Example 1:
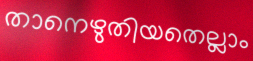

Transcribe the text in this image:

താനെഴുതിയതെല്ലാം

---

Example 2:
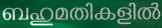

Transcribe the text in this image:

ബഹുമതികളിൽ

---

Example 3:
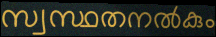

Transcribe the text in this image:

സ്വസ്ഥതനൽകും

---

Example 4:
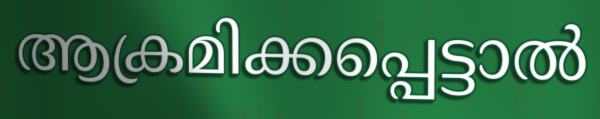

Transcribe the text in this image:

ആക്രമിക്കപ്പെട്ടാൽ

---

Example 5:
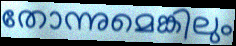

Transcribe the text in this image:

തോന്നുമെങ്കിലും